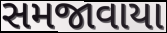
સમજાવાયા